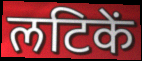
लटिकें